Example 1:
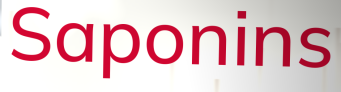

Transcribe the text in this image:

Saponins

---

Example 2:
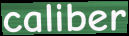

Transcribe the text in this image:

caliber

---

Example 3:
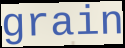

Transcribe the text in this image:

grain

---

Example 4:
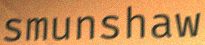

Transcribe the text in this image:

smunshaw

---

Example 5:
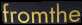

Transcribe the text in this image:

fromthe